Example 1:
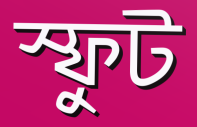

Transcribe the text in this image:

স্ফুট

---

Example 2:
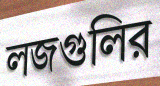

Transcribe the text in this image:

লজগুলির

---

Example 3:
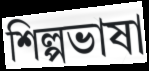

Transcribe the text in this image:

শিল্পভাষা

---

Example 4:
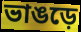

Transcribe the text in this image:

ভাঙড়ে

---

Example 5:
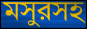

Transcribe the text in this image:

মসুরসহ